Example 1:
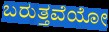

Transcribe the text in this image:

ಬರುತ್ತವೆಯೋ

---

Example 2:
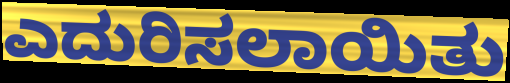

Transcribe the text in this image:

ಎದುರಿಸಲಾಯಿತು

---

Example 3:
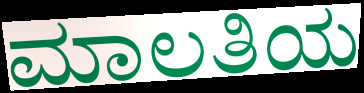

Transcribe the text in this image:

ಮಾಲತಿಯ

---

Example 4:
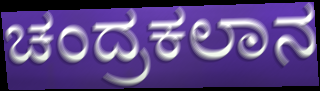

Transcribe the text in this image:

ಚಂದ್ರಕಲಾನ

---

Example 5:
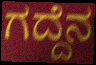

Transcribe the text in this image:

ಗದ್ದೆನ